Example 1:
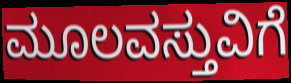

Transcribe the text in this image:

ಮೂಲವಸ್ತುವಿಗೆ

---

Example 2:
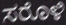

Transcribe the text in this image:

ಸರೊಳಿ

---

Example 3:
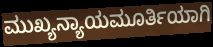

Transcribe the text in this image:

ಮುಖ್ಯನ್ಯಾಯಮೂರ್ತಿಯಾಗಿ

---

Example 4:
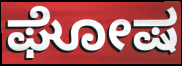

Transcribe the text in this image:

ಘೋಷ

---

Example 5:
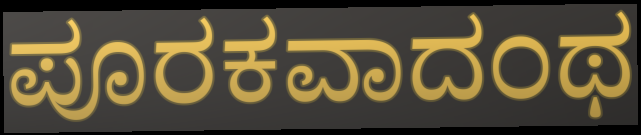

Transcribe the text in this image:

ಪೂರಕವಾದಂಥ